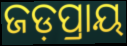
ଜଡ଼ପ୍ରାୟ